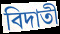
বিদাতী